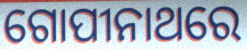
ଗୋପୀନାଥରେ